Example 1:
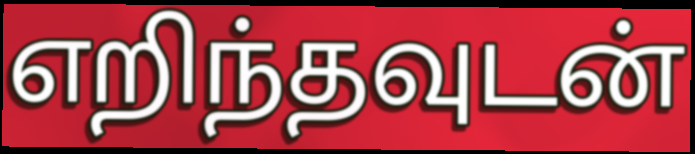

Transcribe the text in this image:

எறிந்தவுடன்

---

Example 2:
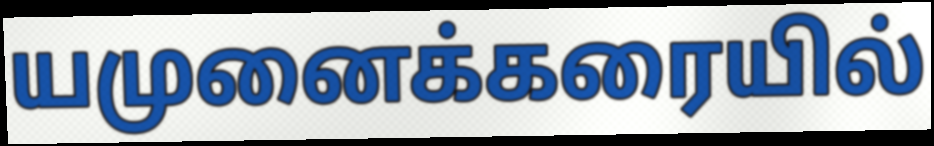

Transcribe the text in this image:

யமுனைக்கரையில்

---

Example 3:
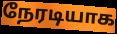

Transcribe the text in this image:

நேரடியாக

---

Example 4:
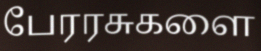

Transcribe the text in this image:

பேரரசுகளை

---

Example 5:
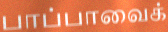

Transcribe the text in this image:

பாப்பாவைக்